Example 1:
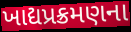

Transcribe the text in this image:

ખાદ્યપ્રક્રમણના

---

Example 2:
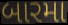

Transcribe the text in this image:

બારમા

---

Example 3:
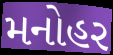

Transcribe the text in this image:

મનોહર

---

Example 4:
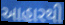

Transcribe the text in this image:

આહારથી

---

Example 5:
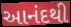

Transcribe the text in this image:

આનંદથી